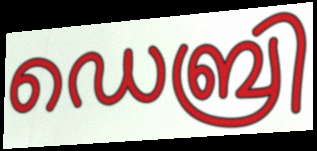
ഡെബ്രി